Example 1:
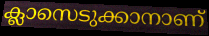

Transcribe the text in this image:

ക്ലാസെടുക്കാനാണ്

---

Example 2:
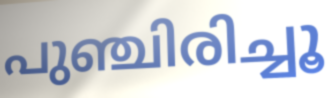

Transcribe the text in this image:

പുഞ്ചിരിച്ചൂ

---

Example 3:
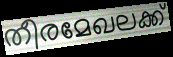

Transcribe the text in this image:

തീരമേഖലക്ക്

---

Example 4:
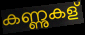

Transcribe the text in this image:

കണ്ണുകള്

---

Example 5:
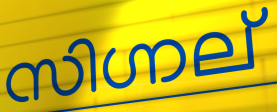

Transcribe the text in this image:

സിഗ്നല്